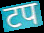
टप